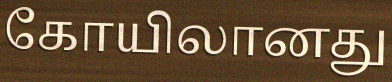
கோயிலானது